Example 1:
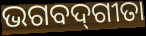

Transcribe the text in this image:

ଭଗବଦ୍‌ଗୀତା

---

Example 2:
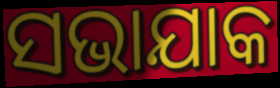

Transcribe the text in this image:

ସଭାଯାକ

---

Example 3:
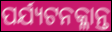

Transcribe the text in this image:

ପର୍ଯ୍ୟଟନକ୍ଳାନ୍ତ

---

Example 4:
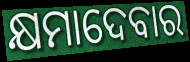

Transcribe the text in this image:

କ୍ଷମାଦେବାର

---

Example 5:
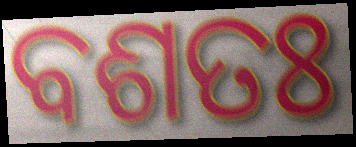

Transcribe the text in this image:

ବଶତଃ